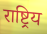
राष्ट्रिय